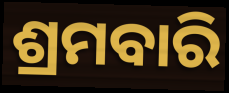
ଶ୍ରମବାରି